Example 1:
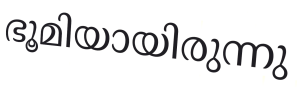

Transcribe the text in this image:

ഭൂമിയായിരുന്നു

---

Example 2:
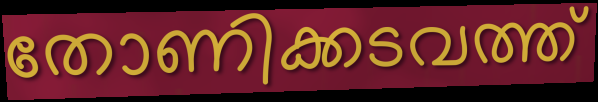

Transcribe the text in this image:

തോണിക്കടവത്ത്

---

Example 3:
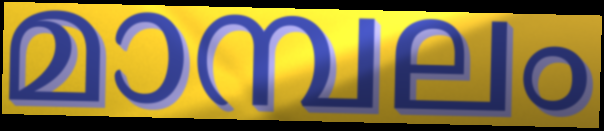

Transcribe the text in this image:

മാമ്പലം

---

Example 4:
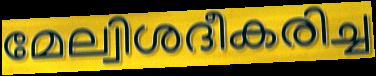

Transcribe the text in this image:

മേല്വിശദീകരിച്ച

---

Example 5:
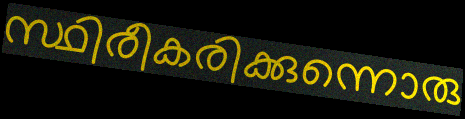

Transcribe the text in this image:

സ്ഥിരീകരിക്കുന്നൊരു